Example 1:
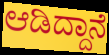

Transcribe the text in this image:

ಆಡಿದ್ದಾನೆ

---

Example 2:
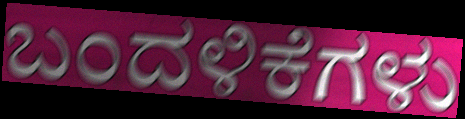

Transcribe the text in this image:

ಬಂದಳಿಕೆಗಳು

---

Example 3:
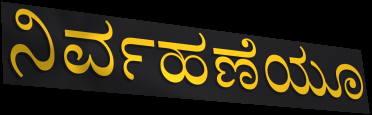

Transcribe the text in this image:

ನಿರ್ವಹಣೆಯೂ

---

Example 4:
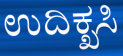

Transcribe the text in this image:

ಉದಿಕ್ಖಸಿ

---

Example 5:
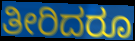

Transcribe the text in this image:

ತೀರಿದರೂ